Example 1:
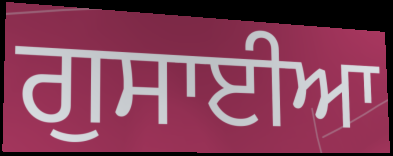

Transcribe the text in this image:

ਗੁਸਾਈਆ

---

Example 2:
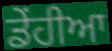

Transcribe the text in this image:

ਡੇਂਹੀਆ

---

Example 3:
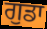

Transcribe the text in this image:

ਗੁਡਾ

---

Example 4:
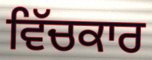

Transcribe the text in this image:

ਵਿੱਚਕਾਰ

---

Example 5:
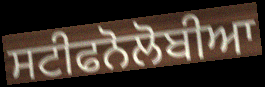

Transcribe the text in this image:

ਸਟੀਫਨੋਲੋਬੀਆ